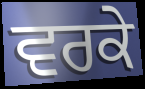
ਵਰਕੇ